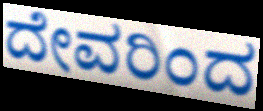
ದೇವರಿಂದ